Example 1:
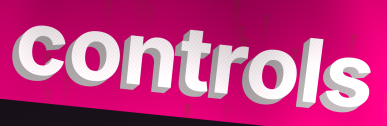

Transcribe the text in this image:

controls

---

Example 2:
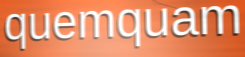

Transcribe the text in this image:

quemquam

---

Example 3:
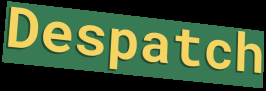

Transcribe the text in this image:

Despatch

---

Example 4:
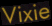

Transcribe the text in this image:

Vixie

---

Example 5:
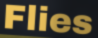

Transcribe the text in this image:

Flies